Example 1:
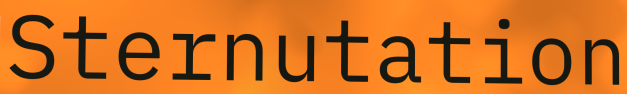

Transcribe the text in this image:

Sternutation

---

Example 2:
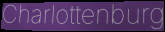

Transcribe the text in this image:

Charlottenburg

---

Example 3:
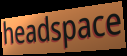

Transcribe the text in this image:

headspace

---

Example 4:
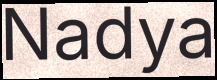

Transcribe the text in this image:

Nadya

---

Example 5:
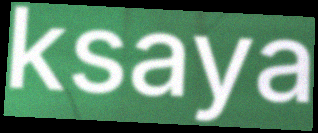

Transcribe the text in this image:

ksaya